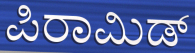
ಪಿರಾಮಿಡ್